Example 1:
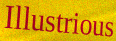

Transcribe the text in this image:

Illustrious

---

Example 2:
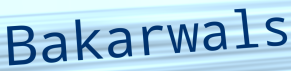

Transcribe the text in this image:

Bakarwals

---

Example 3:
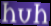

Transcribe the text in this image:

huh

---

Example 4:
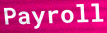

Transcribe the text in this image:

Payroll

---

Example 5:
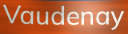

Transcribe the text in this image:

Vaudenay